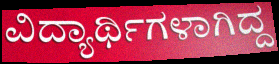
ವಿದ್ಯಾರ್ಥಿಗಳಾಗಿದ್ದ